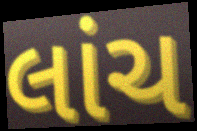
લાંચ